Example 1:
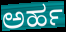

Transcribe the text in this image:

ಅರ್ಹ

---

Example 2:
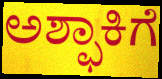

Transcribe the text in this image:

ಅಶ್ಫಾಕಿಗೆ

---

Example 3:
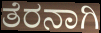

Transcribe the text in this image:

ತೆರನಾಗಿ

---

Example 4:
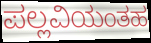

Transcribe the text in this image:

ಪಲ್ಲವಿಯಂತಹ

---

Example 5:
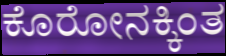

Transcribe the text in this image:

ಕೊರೋನಕ್ಕಿಂತ